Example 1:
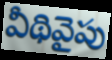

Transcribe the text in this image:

వీథివైపు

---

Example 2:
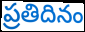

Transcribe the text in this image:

ప్రతిదినం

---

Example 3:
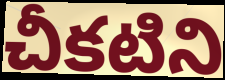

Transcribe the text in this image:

చీకటిని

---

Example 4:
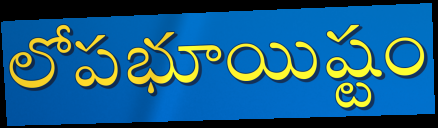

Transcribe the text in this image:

లోపభూయిష్టం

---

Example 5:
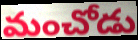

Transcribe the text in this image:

మంచోడు